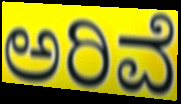
ಅರಿವೆ